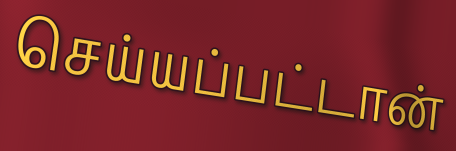
செய்யப்பட்டான்